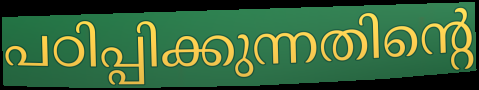
പഠിപ്പിക്കുന്നതിന്റെ